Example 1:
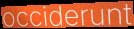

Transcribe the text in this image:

occiderunt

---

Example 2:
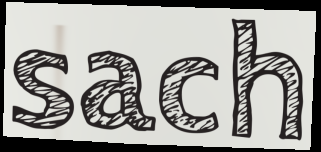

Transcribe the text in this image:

sach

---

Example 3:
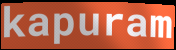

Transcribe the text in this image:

kapuram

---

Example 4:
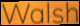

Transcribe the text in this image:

Walsh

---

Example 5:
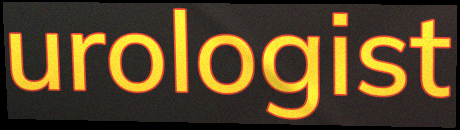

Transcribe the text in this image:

urologist